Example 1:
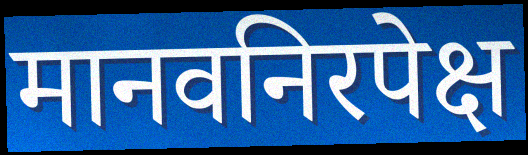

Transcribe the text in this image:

मानवनिरपेक्ष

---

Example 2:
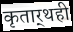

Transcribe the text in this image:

कृतार्थही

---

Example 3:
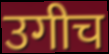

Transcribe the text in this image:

उगीच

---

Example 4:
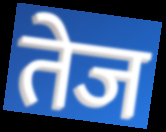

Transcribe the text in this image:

तेज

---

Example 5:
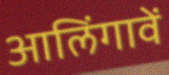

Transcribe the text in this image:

आलिंगावें